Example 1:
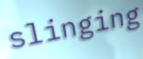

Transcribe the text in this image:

slinging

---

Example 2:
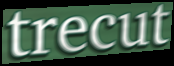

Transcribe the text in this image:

trecut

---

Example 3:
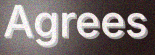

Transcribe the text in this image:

Agrees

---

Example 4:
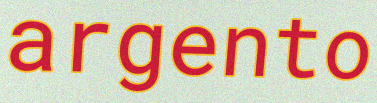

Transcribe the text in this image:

argento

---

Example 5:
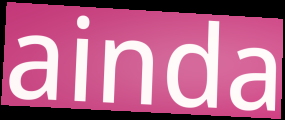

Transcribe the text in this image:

ainda